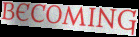
BECOMING